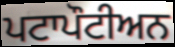
ਪਟਾਪੌਟੀਅਨ